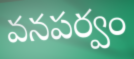
వనపర్వం